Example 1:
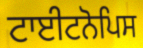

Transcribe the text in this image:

ਟਾਈਟਨੋਪਿਸ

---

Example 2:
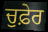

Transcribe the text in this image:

ਚੁਫ਼ੇਰ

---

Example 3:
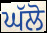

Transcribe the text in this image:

ਘੱਲੋ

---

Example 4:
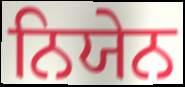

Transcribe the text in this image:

ਨਿਯੇਨ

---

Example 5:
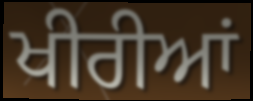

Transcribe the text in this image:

ਖੀਰੀਆਂ